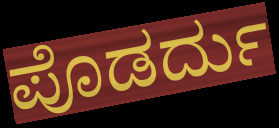
ಪೊಡರ್ದು